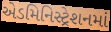
એડમિનિસ્ટ્રેશનમાં